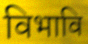
विभावि